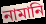
নামানি